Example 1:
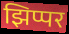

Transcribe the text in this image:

झिप्पर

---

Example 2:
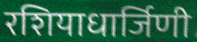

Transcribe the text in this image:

रशियाधार्जिणी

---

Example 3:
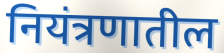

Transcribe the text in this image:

नियंत्रणातील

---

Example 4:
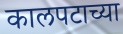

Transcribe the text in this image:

कालपटाच्या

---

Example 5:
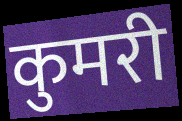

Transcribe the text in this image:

कुमरी